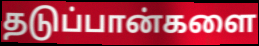
தடுப்பான்களை